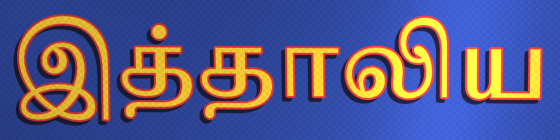
இத்தாலிய